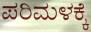
ಪರಿಮಳಕ್ಕೆ